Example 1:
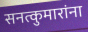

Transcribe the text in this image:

सनत्कुमारांना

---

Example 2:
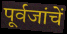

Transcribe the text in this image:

पूर्वजांचें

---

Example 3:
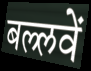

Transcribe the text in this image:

बल्लवें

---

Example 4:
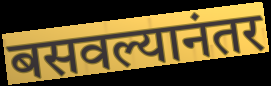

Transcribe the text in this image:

बसवल्यानंतर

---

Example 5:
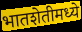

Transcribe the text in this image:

भातशेतीमध्ये